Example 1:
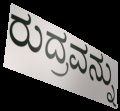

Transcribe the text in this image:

ರುದ್ರವನ್ನು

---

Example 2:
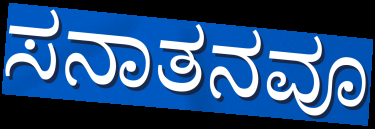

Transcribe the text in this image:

ಸನಾತನವೂ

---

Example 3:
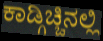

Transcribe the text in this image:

ಕಾಡ್ಗಿಚ್ಚಿನಲ್ಲಿ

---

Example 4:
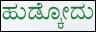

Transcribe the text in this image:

ಹುಡ್ಕೋದು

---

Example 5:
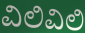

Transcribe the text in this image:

ವಿಲಿವಿಲಿ